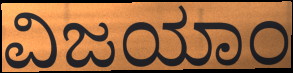
ವಿಜಯಾಂ